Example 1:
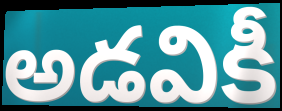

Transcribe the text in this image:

అడవికీ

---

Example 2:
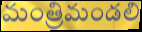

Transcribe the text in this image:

మంత్రిమండలి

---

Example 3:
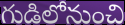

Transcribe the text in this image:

గుడిలోనుంచి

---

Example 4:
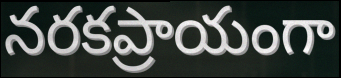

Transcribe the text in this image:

నరకప్రాయంగా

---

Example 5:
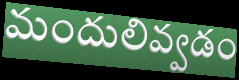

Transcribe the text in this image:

మందులివ్వడం